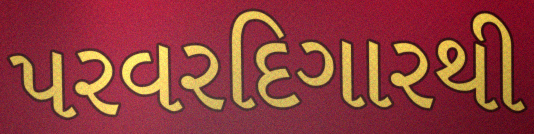
પરવરદિગારથી